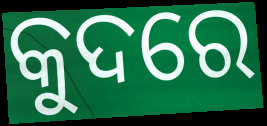
କୁଦରେ